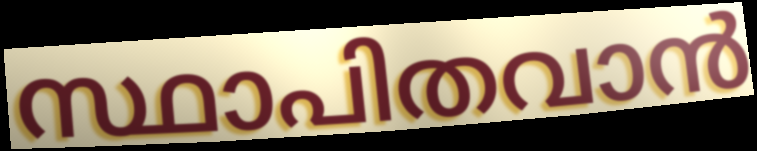
സ്ഥാപിതവാൻ